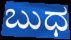
ಬುಧ